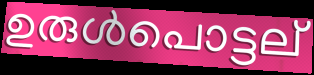
ഉരുൾപൊട്ടല്